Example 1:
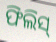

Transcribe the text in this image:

ଫିଲିସ୍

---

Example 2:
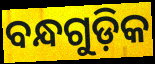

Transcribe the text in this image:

ବନ୍ଧଗୁଡ଼ିକ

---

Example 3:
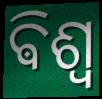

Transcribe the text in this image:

ଵିଶ୍ୱ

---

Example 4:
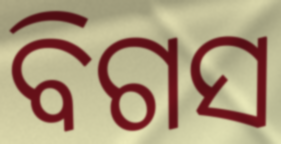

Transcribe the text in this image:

ବିଗସ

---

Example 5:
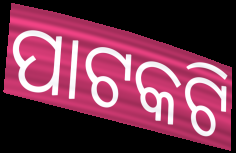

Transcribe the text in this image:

ପାଟକଟି